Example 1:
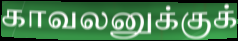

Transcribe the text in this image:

காவலனுக்குக்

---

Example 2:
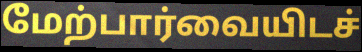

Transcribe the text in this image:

மேற்பார்வையிடச்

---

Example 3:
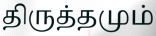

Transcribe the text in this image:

திருத்தமும்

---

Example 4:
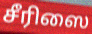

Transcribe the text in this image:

சீரிஸை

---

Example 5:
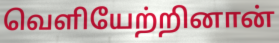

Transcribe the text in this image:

வெளியேற்றினான்